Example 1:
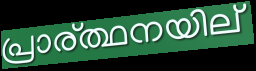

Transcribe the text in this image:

പ്രാര്ത്ഥനയില്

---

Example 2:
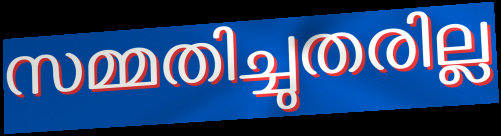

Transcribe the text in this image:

സമ്മതിച്ചുതരില്ല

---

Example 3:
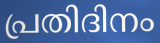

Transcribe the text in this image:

പ്രതിദിനം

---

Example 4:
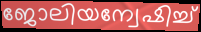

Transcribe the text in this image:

ജോലിയന്വേഷിച്ച്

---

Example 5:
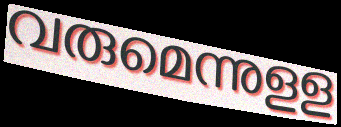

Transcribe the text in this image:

വരുമെന്നുളള